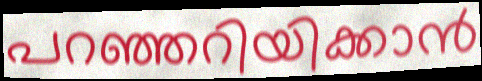
പറഞ്ഞറിയിക്കാൻ